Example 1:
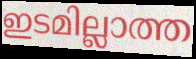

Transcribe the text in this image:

ഇടമില്ലാത്ത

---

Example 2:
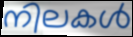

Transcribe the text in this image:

നിലകൾ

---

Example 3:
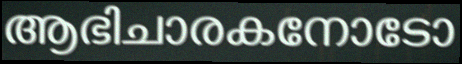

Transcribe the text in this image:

ആഭിചാരകനോടോ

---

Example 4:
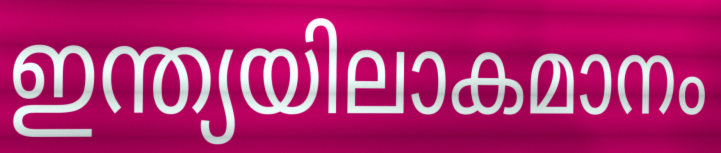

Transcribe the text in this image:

ഇന്ത്യയിലാകമാനം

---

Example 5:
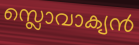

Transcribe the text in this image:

സ്ലൊവാക്യൻ